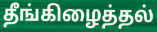
தீங்கிழைத்தல்